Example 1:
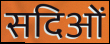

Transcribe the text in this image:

सदिओं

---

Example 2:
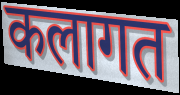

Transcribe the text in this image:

कलागत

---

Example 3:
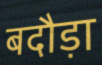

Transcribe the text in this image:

बदौड़ा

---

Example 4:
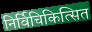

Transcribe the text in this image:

निर्विचिकित्सित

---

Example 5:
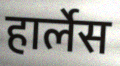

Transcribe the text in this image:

हार्लेस